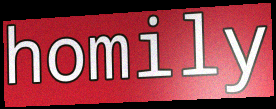
homily